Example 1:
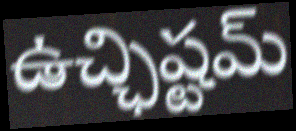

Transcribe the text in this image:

ఉచ్ఛిష్టమ్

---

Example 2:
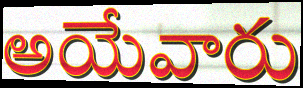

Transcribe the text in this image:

అయేవారు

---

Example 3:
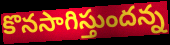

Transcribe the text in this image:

కొనసాగిస్తుందన్న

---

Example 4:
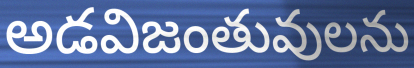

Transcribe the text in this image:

అడవిజంతువులను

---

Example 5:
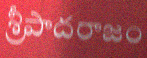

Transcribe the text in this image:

శ్రీపాదరాజం